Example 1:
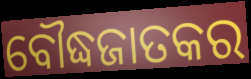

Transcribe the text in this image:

ବୌଦ୍ଧଜାତକର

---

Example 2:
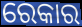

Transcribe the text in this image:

ରେକାର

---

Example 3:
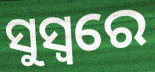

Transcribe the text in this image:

ସୁସ୍ୱରେ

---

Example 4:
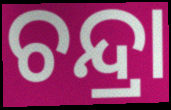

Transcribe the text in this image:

ଚନ୍ଦ୍ରା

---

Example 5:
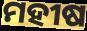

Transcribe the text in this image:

ମହୀଷ